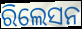
ରିଲେସନ